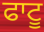
ਫਾਟੂ